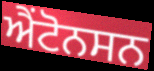
ਐਂਟੋਨਸਨ